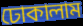
ঢোকালাম